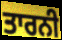
ਤਾਰਨੀ